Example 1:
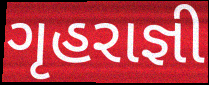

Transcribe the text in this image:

ગૃહરાજ્ઞી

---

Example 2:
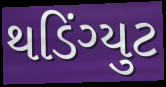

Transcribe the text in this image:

થડિંગ્યુટ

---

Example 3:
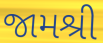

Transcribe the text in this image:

જામશ્રી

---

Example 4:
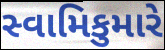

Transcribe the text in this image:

સ્વામિકુમારે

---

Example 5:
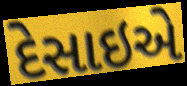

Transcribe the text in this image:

દેસાઇએ